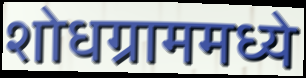
शोधग्राममध्ये